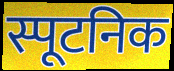
स्पूटनिक